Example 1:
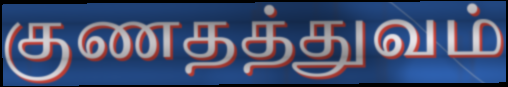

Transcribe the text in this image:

குணதத்துவம்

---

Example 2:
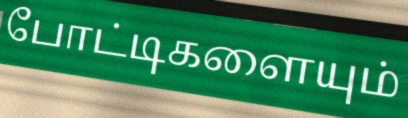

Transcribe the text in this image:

போட்டிகளையும்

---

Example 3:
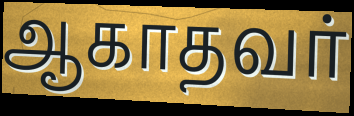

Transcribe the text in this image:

ஆகாதவர்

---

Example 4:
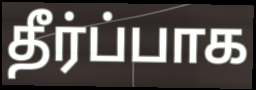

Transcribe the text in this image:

தீர்ப்பாக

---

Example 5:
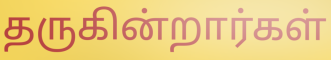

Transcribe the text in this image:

தருகின்றார்கள்